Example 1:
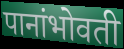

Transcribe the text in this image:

पानांभोवती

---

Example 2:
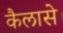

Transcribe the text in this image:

कैलासे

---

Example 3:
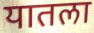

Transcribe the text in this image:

यातला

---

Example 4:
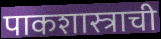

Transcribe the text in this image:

पाकशास्त्राची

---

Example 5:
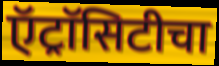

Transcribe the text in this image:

ऍट्रॉसिटीचा